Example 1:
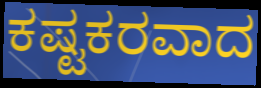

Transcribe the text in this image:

ಕಷ್ಟಕರವಾದ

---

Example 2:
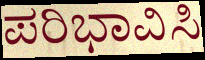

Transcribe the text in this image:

ಪರಿಭಾವಿಸಿ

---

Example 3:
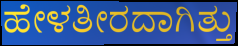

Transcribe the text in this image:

ಹೇಳತೀರದಾಗಿತ್ತು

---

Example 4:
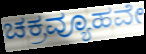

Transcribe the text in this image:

ಚಕ್ರವ್ಯೂಹವೇ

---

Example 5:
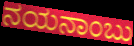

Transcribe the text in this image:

ನಯನಾಂಬು